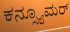
ಕನ್ಸ್ಯೂಮರ್